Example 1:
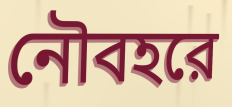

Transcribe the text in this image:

নৌবহরে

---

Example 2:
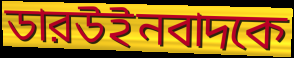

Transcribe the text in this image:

ডারউইনবাদকে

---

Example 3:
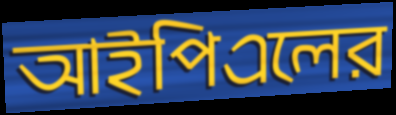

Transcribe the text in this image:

আইপিএলের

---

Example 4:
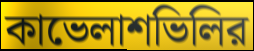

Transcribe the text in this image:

কাভেলাশভিলির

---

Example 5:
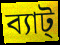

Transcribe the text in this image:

ব্যাট্